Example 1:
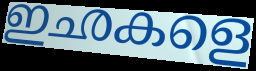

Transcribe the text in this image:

ഇഛകളെ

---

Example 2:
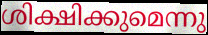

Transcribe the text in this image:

ശിക്ഷിക്കുമെന്നു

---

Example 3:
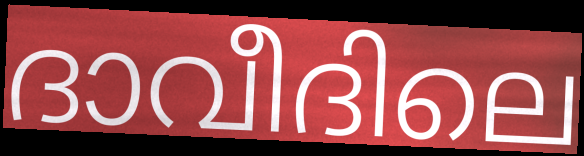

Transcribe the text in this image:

ദാവീദിലെ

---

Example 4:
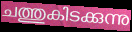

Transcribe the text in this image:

ചത്തുകിടക്കുന്നു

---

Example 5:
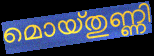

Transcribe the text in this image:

മൊയ്തുണ്ണി